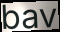
bav